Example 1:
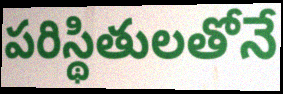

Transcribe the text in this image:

పరిస్థితులతోనే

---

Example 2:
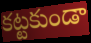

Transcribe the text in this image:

కట్టకుండా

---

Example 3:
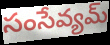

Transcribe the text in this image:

సంసేవ్యమ్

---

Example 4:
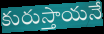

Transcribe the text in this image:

కురుస్తాయనే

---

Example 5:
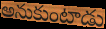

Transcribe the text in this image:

అనుకుంటాడు